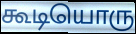
கூடியொரு